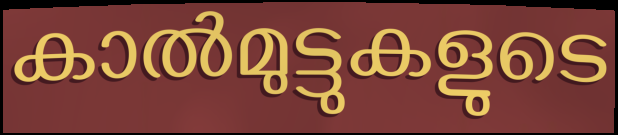
കാൽമുട്ടുകളുടെ